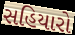
સહિયારો